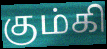
கும்கி